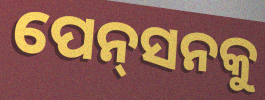
ପେନ୍‌ସନକୁ